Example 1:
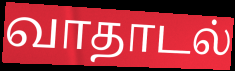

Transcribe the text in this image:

வாதாடல்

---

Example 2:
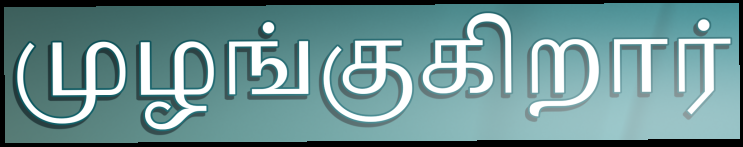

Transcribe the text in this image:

முழங்குகிறார்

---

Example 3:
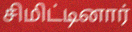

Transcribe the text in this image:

சிமிட்டினார்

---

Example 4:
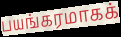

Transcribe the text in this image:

பயங்கரமாகக்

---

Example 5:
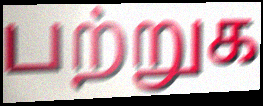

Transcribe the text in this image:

பற்றுக